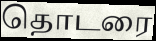
தொடரை